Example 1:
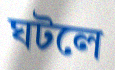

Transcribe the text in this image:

ঘটলে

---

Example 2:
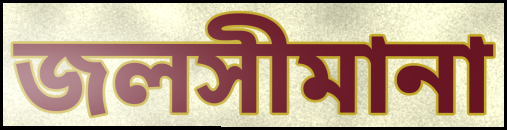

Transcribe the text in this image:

জলসীমানা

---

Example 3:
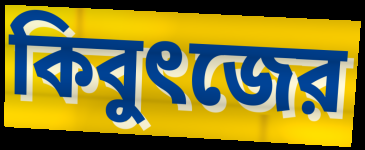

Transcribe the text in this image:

কিবুৎজের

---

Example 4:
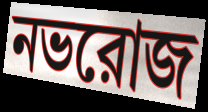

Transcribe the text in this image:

নভরোজ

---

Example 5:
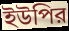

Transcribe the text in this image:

ইউপির